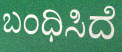
ಬಂಧಿಸಿದೆ